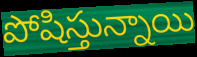
పోషిస్తున్నాయి